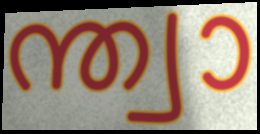
ന്ത്വാ